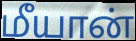
மீயான்